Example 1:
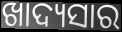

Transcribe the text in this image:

ଖାଦ୍ୟସାର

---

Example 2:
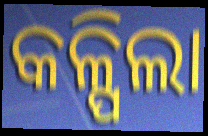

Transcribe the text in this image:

କଳ୍ପିଲା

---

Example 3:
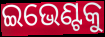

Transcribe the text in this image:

ଇଭେଣ୍ଟକୁ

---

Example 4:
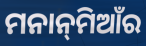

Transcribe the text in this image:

ମନାନ୍‌ମିଆଁର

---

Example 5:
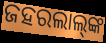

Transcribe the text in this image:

ଜହରଲାଲ୍‌ଙ୍କ